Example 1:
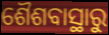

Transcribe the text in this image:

ଶୈଶବାସ୍ଥାରୁ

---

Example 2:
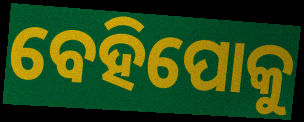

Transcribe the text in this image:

ବେହିପୋକୁ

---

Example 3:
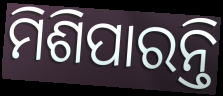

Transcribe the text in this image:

ମିଶିପାରନ୍ତି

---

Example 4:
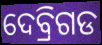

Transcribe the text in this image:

ଦେବ୍ରିଗଡ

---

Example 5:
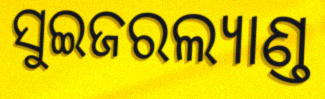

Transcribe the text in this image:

ସୁଇଜରଲ୍ୟାଣ୍ଡ